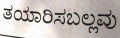
ತಯಾರಿಸಬಲ್ಲವು